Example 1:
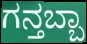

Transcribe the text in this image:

ಗನ್ತಬ್ಬಾ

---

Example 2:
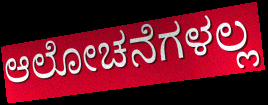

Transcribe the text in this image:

ಆಲೋಚನೆಗಳಲ್ಲ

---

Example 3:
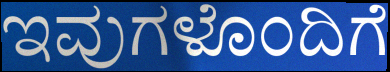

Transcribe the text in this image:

ಇವುಗಳೊಂದಿಗೆ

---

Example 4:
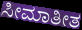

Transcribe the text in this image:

ಸೀಮಾತೀತ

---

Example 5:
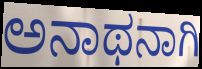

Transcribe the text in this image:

ಅನಾಥನಾಗಿ